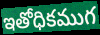
ఇతోధికముగ